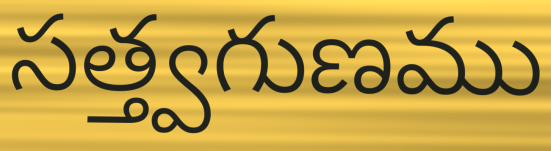
సత్త్వగుణము